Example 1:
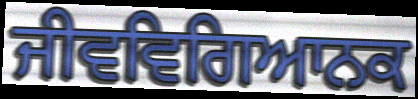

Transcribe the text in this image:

ਜੀਵਵਿਗਿਆਨਕ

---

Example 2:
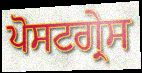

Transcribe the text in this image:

ਪੋਸਟਗ੍ਰੇਸ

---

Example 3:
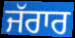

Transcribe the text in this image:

ਜੱਰਾਰ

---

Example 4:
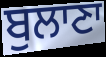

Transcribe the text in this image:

ਬੁਲਾਣਾ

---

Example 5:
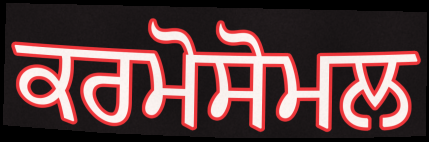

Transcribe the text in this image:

ਕਰਮੋਸੋਮਲ